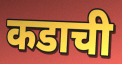
कडाची